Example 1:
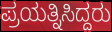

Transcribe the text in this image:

ಪ್ರಯತ್ನಿಸಿದ್ದರು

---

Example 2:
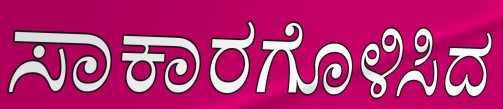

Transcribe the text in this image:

ಸಾಕಾರಗೊಳಿಸಿದ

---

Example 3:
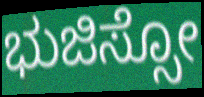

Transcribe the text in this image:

ಭುಜಿಸ್ಸೋ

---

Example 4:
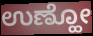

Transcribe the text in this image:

ಉಣ್ಹೋ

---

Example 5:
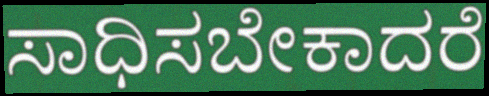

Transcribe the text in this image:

ಸಾಧಿಸಬೇಕಾದರೆ